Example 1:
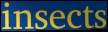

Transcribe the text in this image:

insects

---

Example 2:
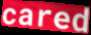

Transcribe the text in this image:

cared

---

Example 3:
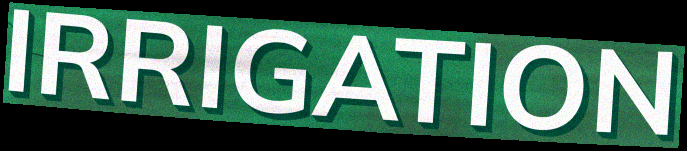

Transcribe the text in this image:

IRRIGATION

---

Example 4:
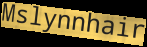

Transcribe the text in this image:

Mslynnhair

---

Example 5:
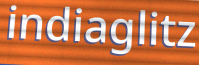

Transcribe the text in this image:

indiaglitz